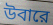
উবারে